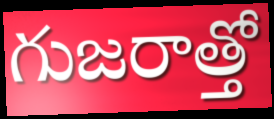
గుజరాత్తో